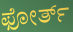
ಫೋರ್ತ್